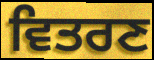
ਵਿਤਰਣ